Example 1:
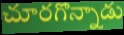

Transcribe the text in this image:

చూరగొన్నాడు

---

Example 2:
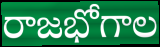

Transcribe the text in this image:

రాజభోగాల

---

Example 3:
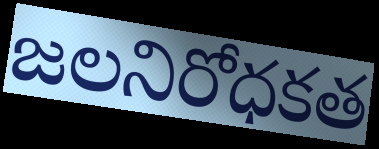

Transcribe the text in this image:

జలనిరోధకత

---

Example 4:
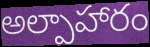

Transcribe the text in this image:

అల్పాహారం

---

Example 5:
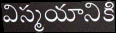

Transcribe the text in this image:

విస్మయానికి